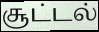
சூட்டல்